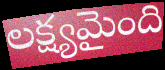
లక్ష్యమైంది